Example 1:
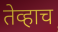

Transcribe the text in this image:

तेव्हाच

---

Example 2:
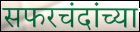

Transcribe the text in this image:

सफरचंदांच्या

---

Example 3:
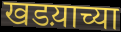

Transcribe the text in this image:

खडय़ाच्या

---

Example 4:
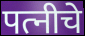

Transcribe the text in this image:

पत्‍नीचे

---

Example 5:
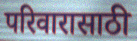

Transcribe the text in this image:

परिवारासाठी